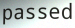
passed